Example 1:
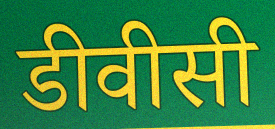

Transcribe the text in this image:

डीवीसी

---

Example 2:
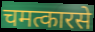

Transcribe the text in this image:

चमत्कारसे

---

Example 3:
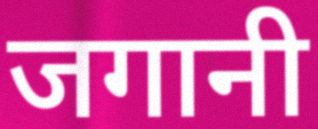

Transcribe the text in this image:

जगानी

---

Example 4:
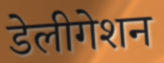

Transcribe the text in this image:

डेलीगेशन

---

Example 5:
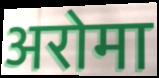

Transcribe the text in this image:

अरोमा